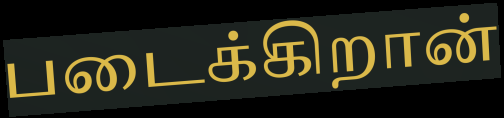
படைக்கிறான்